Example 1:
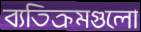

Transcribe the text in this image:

ব্যতিক্রমগুলো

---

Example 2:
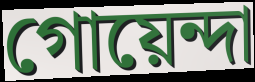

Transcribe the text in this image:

গোয়েন্দা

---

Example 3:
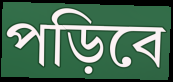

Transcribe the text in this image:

পড়িবে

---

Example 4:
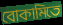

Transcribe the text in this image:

বোকামিতে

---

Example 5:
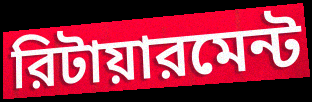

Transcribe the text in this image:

রিটায়ারমেন্ট